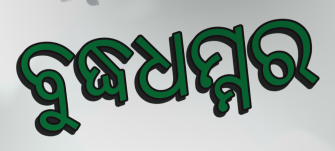
ବୁଦ୍ଧଧମ୍ମର